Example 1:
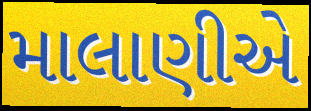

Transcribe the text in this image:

માલાણીએ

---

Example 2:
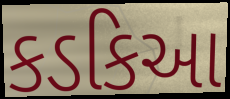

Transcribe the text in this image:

કડકિઆ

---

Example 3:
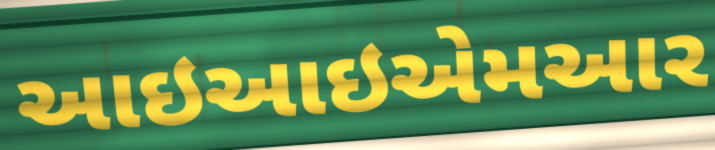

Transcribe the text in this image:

આઇઆઇએમઆર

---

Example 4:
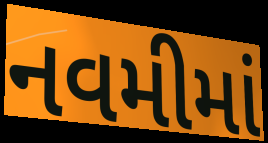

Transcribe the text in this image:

નવમીમાં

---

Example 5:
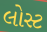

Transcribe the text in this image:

લોસ્ટ